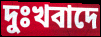
দুঃখবাদে